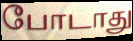
போடாது